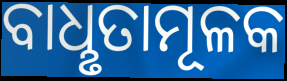
ବାଧୢତାମୂଳକ